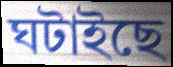
ঘটাইছে